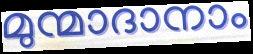
മുന്മാദാനാം